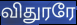
விதுரரே